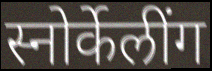
स्नोर्केलींग